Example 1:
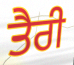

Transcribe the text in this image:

ਤੈਰੀ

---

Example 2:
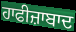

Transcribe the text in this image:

ਹਾਫੀਜ਼ਾਬਾਦ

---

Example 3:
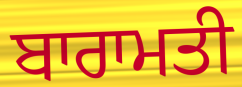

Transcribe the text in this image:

ਬਾਰਾਮਤੀ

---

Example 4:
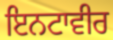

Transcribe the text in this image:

ਇਨਟਾਵੀਰ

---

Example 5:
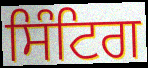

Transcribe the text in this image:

ਸਿੰਟਿਗ